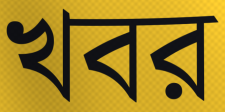
খবর